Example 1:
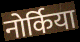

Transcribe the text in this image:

नोर्किया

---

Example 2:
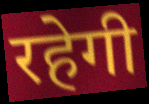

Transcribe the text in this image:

रहेगी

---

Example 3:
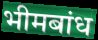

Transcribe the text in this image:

भीमबांध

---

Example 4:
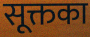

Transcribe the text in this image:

सूक्तका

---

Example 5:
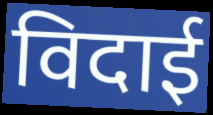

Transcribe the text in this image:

विदाई